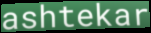
ashtekar